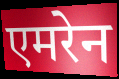
एमरेन